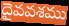
దైవవశము